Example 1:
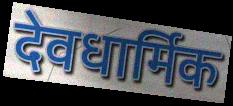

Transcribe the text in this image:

देवधार्मिक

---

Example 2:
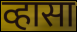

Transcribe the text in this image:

व्हासा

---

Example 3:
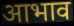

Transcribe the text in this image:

आभाव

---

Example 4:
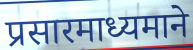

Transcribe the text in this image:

प्रसारमाध्यमाने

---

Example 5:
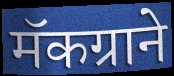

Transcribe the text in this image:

मॅकग्राने